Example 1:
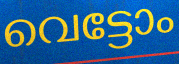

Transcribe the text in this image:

വെട്ടോം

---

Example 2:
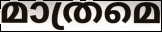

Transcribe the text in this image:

മാത്രമെ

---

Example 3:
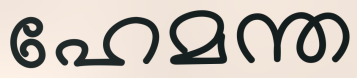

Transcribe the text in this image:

ഹേമന്ത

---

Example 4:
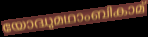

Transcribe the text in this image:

യോദ്ധുമഥാംബികാമ്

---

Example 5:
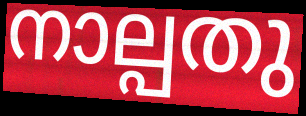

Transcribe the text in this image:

നാല്പതു